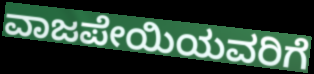
ವಾಜಪೇಯಿಯವರಿಗೆ